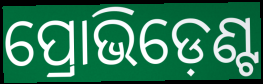
ପ୍ରୋଭିଡ଼େଣ୍ଟ